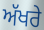
ਅੱਖਰੇ